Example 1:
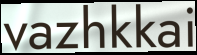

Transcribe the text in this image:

vazhkkai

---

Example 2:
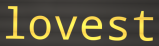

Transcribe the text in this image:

lovest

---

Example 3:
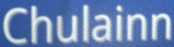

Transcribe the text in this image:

Chulainn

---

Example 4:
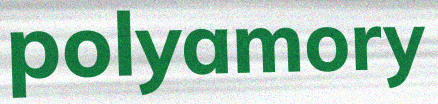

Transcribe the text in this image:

polyamory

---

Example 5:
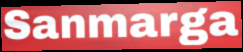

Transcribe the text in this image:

Sanmarga